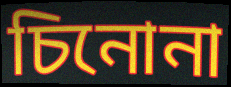
চিনোনা